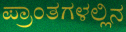
ಪ್ರಾಂತಗಳಲ್ಲಿನ